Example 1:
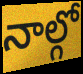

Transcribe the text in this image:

నాల్గో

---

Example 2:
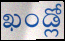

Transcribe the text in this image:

ఖండ్లో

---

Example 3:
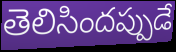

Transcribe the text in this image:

తెలిసిందప్పుడే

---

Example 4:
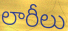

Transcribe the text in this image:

లారీలు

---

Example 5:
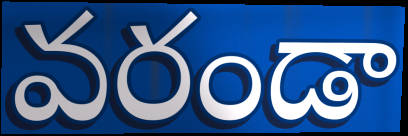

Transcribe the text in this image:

వరండా